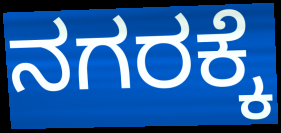
ನಗರಕ್ಕೆ